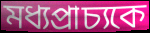
মধ্যপ্রাচ্যকে